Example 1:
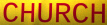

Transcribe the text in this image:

CHURCH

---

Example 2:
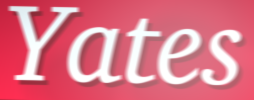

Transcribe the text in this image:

Yates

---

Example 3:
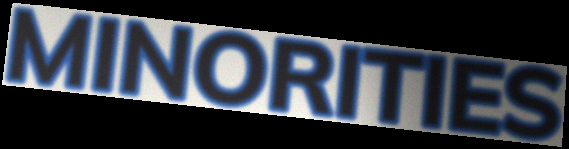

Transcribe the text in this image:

MINORITIES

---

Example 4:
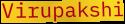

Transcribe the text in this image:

Virupakshi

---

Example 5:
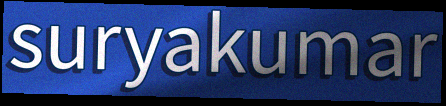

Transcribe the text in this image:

suryakumar